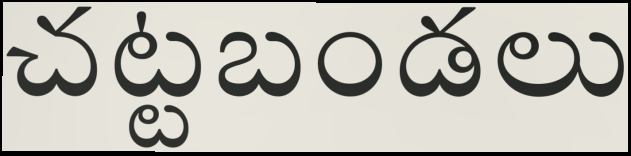
చట్టబండలు